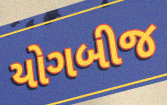
યોગબીજ